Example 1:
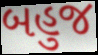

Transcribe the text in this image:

બહુજ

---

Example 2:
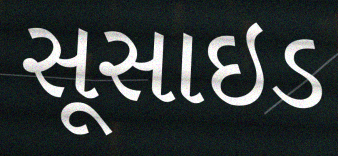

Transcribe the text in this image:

સૂસાઇડ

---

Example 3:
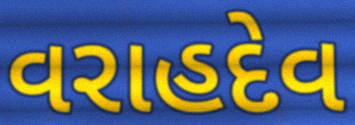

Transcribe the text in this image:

વરાહદેવ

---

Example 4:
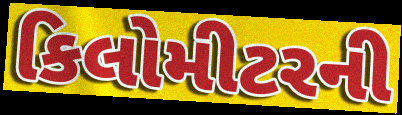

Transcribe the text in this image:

કિલોમીટરની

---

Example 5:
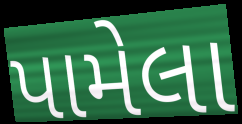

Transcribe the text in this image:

પામેલા